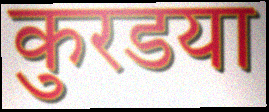
कुरडया